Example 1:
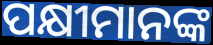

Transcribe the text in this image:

ପକ୍ଷୀମାନଙ୍କ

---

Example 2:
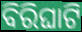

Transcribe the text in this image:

ବିରିଘାଟି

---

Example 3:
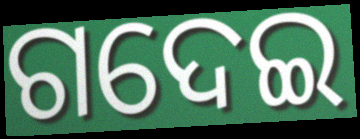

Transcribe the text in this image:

ଗଦେଇ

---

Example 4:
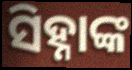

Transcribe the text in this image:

ସିହ୍ନାଙ୍କ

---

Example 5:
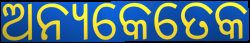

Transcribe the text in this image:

ଅନ୍ୟକେତେକ